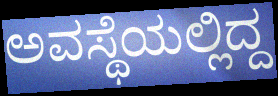
ಅವಸ್ಥೆಯಲ್ಲಿದ್ದ